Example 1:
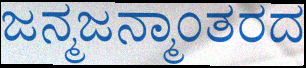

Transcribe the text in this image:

ಜನ್ಮಜನ್ಮಾಂತರದ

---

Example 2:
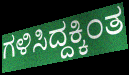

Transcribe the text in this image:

ಗಳಿಸಿದ್ದಕ್ಕಿಂತ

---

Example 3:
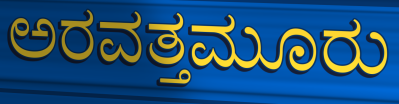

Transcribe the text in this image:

ಅರವತ್ತಮೂರು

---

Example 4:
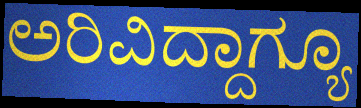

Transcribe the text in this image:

ಅರಿವಿದ್ದಾಗ್ಯೂ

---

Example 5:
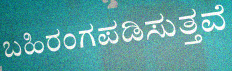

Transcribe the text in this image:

ಬಹಿರಂಗಪಡಿಸುತ್ತವೆ